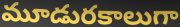
మూడురకాలుగా